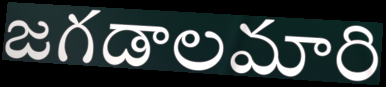
జగడాలమారి